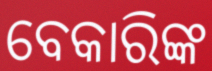
ବେକାରିଙ୍କ